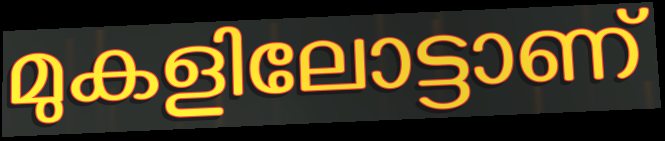
മുകളിലോട്ടാണ്